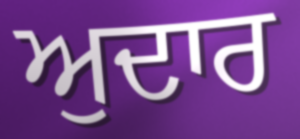
ਅੁਦਾਰ